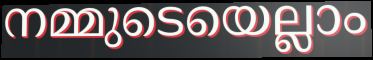
നമ്മുടെയെല്ലാം